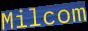
Milcom